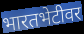
भारतभेटीवर